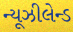
ન્યૂઝીલેન્ડ